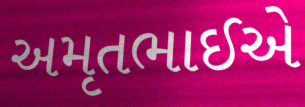
અમૃતભાઈએ